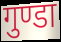
गुण्डा